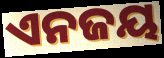
ଏନଜୟ